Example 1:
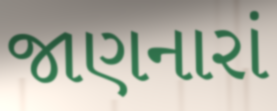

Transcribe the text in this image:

જાણનારાં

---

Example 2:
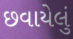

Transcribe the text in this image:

છવાયેલું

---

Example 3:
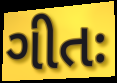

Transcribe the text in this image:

ગીતઃ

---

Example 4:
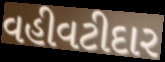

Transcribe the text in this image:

વહીવટીદાર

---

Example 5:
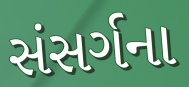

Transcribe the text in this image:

સંસર્ગના